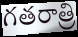
గతరాత్రి